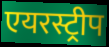
एयरस्ट्रीप